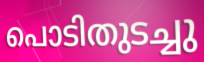
പൊടിതുടച്ചു